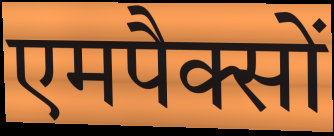
एमपैक्सों